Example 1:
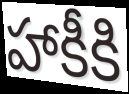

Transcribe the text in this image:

హాకీకి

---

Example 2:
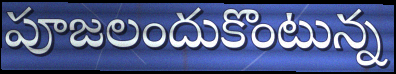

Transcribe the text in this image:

పూజలందుకొంటున్న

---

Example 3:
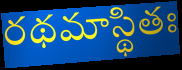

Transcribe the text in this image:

రథమాస్థితః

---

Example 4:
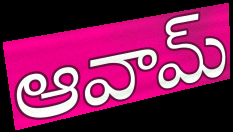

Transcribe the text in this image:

ఆవామ్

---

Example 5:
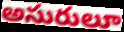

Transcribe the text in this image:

అసురులూ